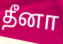
தீனா